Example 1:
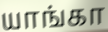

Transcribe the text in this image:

யாங்கா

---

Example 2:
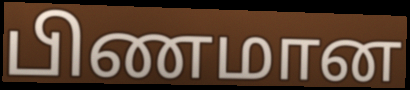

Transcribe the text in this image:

பிணமான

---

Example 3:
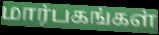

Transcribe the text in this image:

மார்பகங்கள்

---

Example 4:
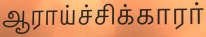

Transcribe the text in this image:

ஆராய்ச்சிக்காரர்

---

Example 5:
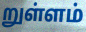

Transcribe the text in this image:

றுள்ளம்